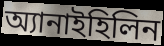
অ্যানাইহিলিন